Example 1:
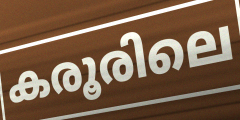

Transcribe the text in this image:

കരൂരിലെ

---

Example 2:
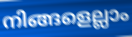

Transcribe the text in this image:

നിങ്ങളെല്ലാം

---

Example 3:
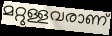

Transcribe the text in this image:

മറ്റുള്ളവരാണ്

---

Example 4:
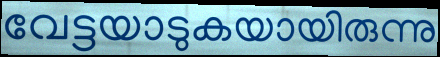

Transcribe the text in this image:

വേട്ടയാടുകയായിരുന്നു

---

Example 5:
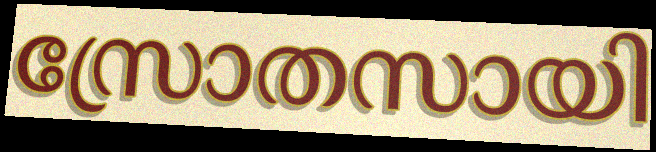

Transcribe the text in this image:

സ്രോതസായി